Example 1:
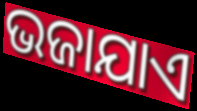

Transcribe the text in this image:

ଭଜାଯାଏ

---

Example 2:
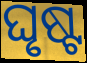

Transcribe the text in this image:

ଘୃଷ୍ଟ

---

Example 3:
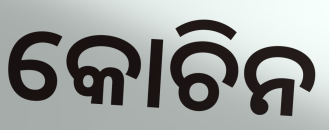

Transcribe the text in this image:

କୋଚିନ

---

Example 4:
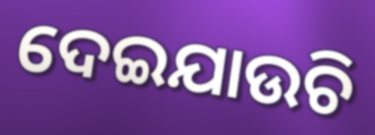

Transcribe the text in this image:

ଦେଇଯାଉଚି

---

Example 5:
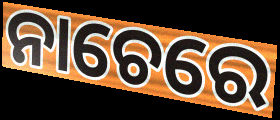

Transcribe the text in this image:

ନାଚେରେ